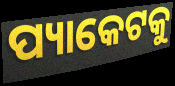
ପ୍ୟାକେଟକୁ